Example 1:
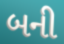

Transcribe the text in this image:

બની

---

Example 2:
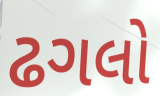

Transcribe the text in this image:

ઢગલો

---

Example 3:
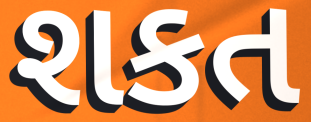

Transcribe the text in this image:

શકત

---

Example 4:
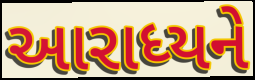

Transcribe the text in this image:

આરાધ્યને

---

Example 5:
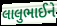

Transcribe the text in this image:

લાલુભાઈને